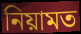
নিয়ামত